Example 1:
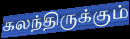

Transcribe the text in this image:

கலந்திருக்கும்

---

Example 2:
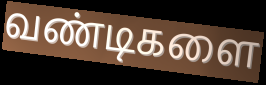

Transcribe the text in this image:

வண்டிகளை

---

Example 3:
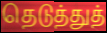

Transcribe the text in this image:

தெடுத்துத்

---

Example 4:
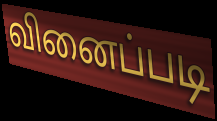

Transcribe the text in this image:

வினைப்படி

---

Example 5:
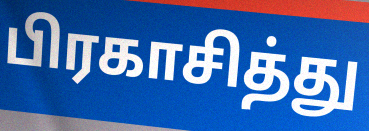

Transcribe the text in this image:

பிரகாசித்து